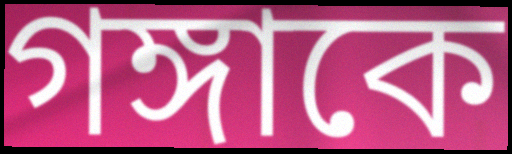
গঙ্গাকে